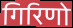
गिरिणो